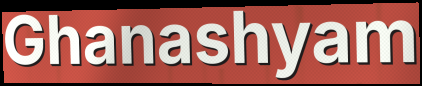
Ghanashyam